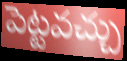
పెట్టవచ్చు